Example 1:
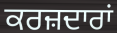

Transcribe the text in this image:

ਕਰਜ਼ਦਾਰਾਂ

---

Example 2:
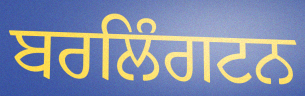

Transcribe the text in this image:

ਬਰਲਿੰਗਟਨ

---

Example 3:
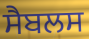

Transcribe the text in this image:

ਸੈਬਲਸ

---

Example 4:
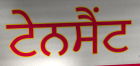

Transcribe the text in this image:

ਟੇਨਸੈਂਟ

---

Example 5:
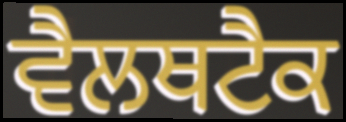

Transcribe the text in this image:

ਵੈਲਥਟੈਕ